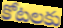
కోటలకు